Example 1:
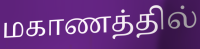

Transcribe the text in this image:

மகாணத்தில்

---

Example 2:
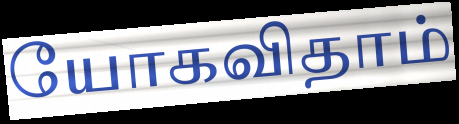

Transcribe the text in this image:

யோகவிதாம்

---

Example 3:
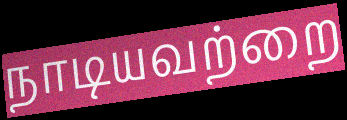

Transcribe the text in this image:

நாடியவற்றை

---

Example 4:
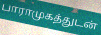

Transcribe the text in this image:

பாராமுகத்துடன்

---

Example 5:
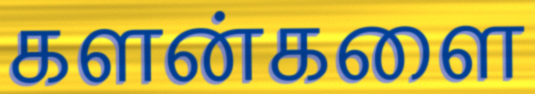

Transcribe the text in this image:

களன்களை